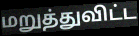
மறுத்துவிட்ட